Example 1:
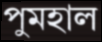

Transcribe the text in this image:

পুমহাল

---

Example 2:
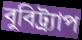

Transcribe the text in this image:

বুবিট্র্যাপ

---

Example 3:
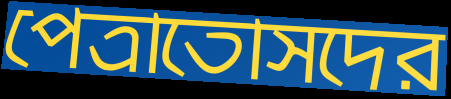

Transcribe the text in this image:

পেত্রাতোসদের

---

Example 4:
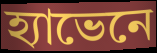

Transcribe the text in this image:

হ্যাভেনে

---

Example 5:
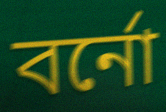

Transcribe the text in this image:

বর্নো